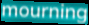
mourning